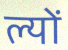
ल्यों